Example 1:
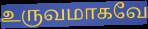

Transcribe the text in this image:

உருவமாகவே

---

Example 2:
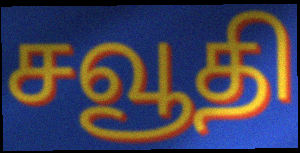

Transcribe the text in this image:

சவூதி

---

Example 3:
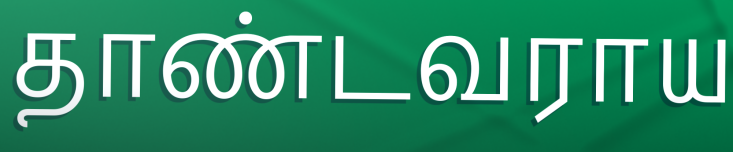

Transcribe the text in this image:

தாண்டவராய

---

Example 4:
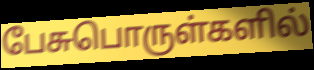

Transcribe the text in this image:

பேசுபொருள்களில்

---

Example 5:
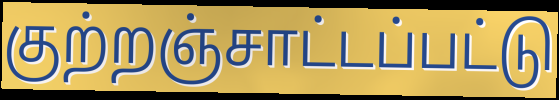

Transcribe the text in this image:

குற்றஞ்சாட்டப்பட்டு